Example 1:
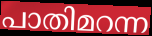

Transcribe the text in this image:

പാതിമറന്ന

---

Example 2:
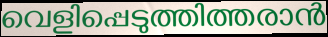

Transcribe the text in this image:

വെളിപ്പെടുത്തിത്തരാൻ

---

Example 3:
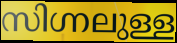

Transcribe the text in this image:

സിഗ്നലുള്ള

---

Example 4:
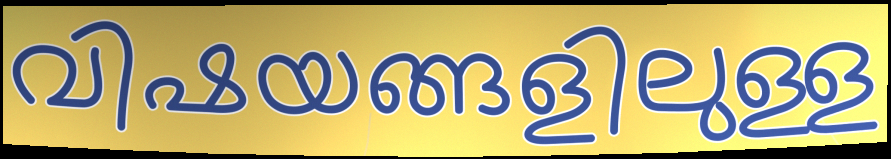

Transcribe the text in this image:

വിഷയങ്ങളിലുള്ള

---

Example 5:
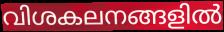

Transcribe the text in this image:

വിശകലനങ്ങളിൽ